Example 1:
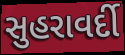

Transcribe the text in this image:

સુહરાવર્દી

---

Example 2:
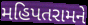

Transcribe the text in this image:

મહિપતરામને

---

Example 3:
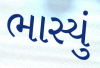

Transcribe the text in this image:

ભાસ્યું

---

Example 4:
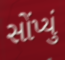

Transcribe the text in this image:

સોંપ્યું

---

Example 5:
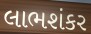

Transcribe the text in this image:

લાભશંકર